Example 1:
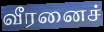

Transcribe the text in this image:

வீரனைச்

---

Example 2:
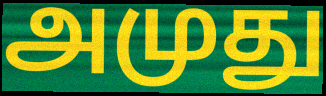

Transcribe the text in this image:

அமுது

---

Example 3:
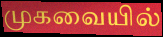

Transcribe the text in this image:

முகவையில்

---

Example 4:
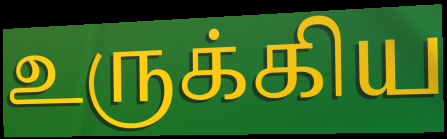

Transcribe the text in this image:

உருக்கிய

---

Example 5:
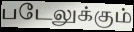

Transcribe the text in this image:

படேலுக்கும்